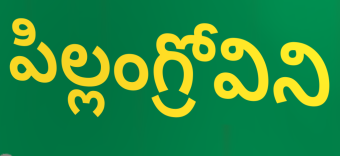
పిల్లంగ్రోవిని